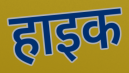
हाइक